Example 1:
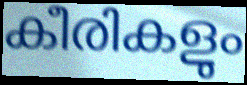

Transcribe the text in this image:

കീരികളും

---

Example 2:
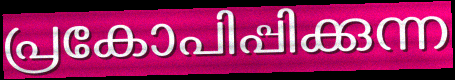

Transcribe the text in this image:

പ്രകോപിപ്പിക്കുന്ന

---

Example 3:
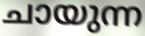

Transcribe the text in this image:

ചായുന്ന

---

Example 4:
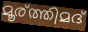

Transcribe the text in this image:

മൂര്ത്തിമദ്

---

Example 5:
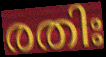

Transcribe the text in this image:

രതിഃ